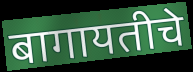
बागायतीचे